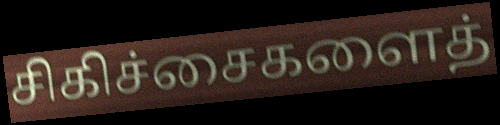
சிகிச்சைகளைத்